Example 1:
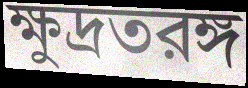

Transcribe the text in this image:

ক্ষুদ্রতরঙ্গ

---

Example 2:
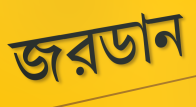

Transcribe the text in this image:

জরডান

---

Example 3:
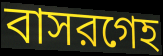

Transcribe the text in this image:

বাসরগেহ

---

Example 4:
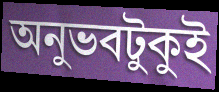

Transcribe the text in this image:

অনুভবটুকুই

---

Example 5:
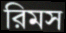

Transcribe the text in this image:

রিমস